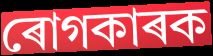
ৰোগকাৰক